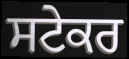
ਸਟੇਕਰ